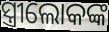
ସ୍ତ୍ରୀଲୋକଙ୍କ